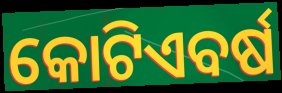
କୋଟିଏବର୍ଷ